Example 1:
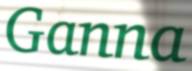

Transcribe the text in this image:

Ganna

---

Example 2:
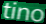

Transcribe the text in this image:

tino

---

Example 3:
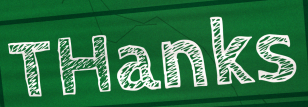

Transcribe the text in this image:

THanks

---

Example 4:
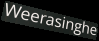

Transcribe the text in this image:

Weerasinghe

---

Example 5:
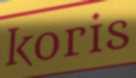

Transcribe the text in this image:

koris